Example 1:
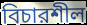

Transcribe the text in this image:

বিচারশীল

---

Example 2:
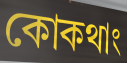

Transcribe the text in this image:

কোকথাং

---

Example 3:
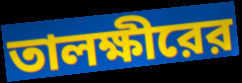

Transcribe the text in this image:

তালক্ষীরের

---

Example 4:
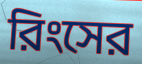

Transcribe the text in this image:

রিংসের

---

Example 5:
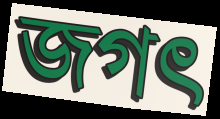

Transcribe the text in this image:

জগৎ